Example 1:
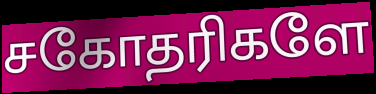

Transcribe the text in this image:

சகோதரிகளே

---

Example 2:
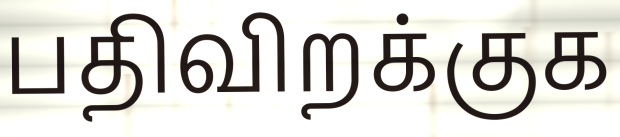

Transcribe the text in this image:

பதிவிறக்குக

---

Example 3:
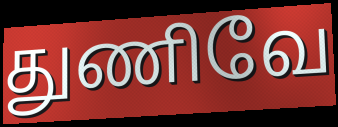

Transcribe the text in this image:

துணிவே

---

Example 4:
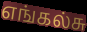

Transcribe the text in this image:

எங்கல்சு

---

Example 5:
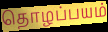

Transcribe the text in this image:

தொழப்பயம்